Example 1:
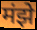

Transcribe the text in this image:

मंझे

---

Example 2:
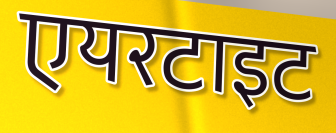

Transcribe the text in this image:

एयरटाइट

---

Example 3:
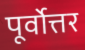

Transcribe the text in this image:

पूर्वोत्तर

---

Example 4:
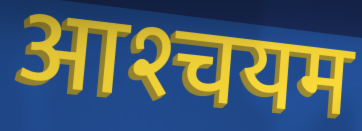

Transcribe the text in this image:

आश्चयम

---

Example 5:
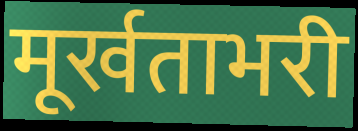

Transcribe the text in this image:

मूर्खताभरी